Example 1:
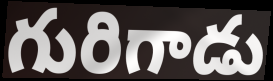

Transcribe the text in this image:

గురిగాడు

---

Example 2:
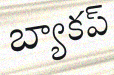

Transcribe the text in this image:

బ్యాకప్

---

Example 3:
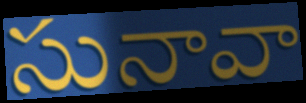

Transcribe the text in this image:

సునావా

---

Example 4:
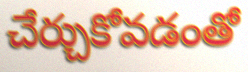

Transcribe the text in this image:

చేర్చుకోవడంతో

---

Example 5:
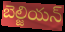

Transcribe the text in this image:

బెల్జియన్